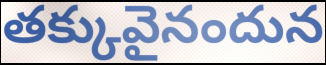
తక్కువైనందున